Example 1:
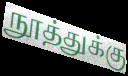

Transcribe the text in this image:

நூத்துக்கு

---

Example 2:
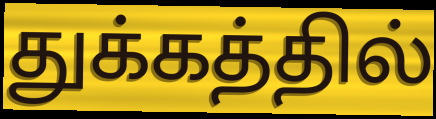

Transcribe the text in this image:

துக்கத்தில்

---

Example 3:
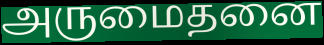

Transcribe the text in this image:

அருமைதனை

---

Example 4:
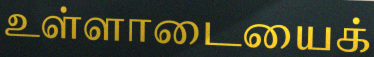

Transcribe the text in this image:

உள்ளாடையைக்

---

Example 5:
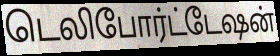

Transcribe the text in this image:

டெலிபோர்ட்டேஷன்